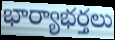
భార్యాభర్తలు